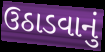
ઉઠાડવાનું